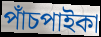
পাঁচপাইকা